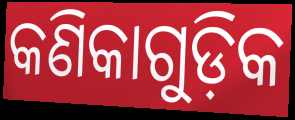
କଣିକାଗୁଡ଼ିକ